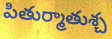
పితుర్మాతుశ్చ